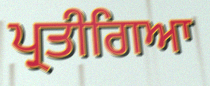
ਪ੍ਰਤੀਗਿਆ